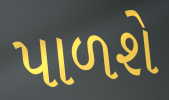
પાળશે